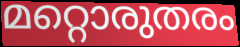
മറ്റൊരുതരം